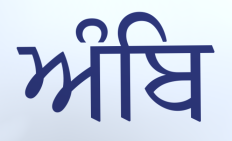
ਅੰਬਿ